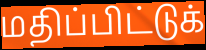
மதிப்பிட்டுக்